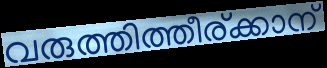
വരുത്തിത്തീര്ക്കാന്